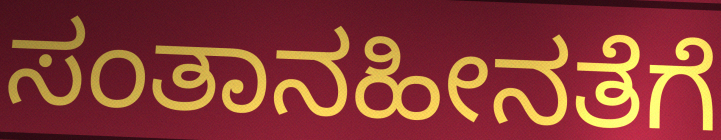
ಸಂತಾನಹೀನತೆಗೆ